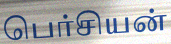
பெர்சியன்